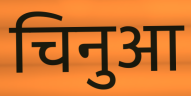
चिनुआ